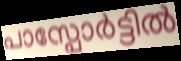
പാസ്പോർട്ടിൽ